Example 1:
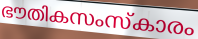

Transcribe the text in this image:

ഭൗതികസംസ്‌കാരം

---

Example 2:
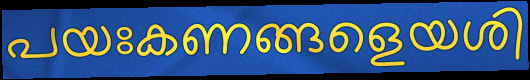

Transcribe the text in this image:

പയഃകണങ്ങളെയശി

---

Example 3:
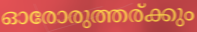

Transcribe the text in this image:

ഓരോരുത്തര്ക്കും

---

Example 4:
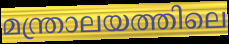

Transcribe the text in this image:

മന്ത്രാലയത്തിലെ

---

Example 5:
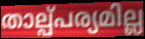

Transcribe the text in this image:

താല്പ്പര്യമില്ല